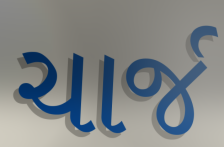
ચાર્જ